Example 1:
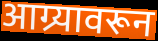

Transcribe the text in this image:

आग्र्यावरून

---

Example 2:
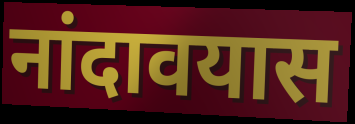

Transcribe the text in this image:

नांदावयास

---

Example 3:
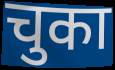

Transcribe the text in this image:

चुका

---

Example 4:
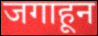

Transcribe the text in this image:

जगाहून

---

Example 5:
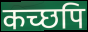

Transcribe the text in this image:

कच्छपि